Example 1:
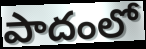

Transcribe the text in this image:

పాదంలో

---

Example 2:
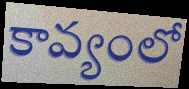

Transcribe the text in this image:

కావ్యంలో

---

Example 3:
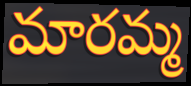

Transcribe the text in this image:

మారమ్మ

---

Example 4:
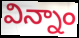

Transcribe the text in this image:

విన్నాం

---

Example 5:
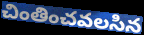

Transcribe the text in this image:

చింతించవలసిన